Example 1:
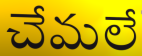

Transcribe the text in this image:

చేమలే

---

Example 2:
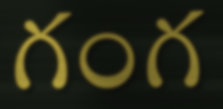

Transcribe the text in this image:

గంగ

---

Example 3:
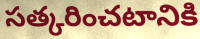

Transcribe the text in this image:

సత్కరించటానికి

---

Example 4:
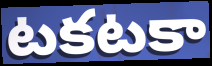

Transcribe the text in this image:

టకటకా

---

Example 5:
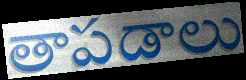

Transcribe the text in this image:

తాపడాలు